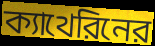
ক্যাথেরিনের